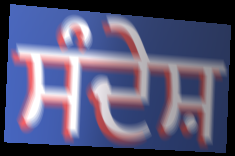
ਸੰਦੇਸ਼